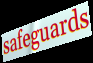
safeguards